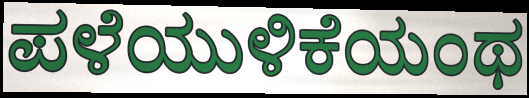
ಪಳೆಯುಳಿಕೆಯಂಥ